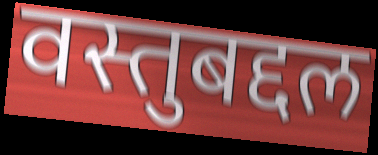
वस्तुबद्दल